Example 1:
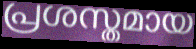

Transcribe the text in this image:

പ്രശസ്തമായ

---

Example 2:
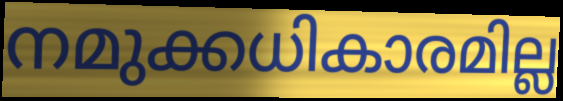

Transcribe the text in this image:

നമുക്കധികാരമില്ല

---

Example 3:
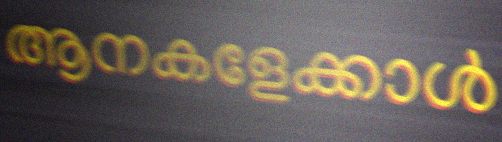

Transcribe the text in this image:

ആനകളേക്കാൾ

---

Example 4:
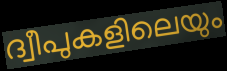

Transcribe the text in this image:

ദ്വീപുകളിലെയും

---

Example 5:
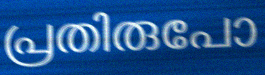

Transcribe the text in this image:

പ്രതിരുപോ